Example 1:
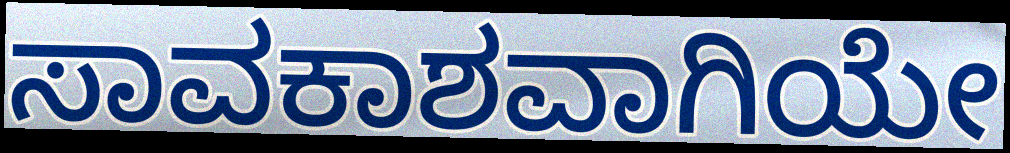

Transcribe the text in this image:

ಸಾವಕಾಶವಾಗಿಯೇ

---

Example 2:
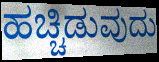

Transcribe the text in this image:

ಹಚ್ಚಿಡುವುದು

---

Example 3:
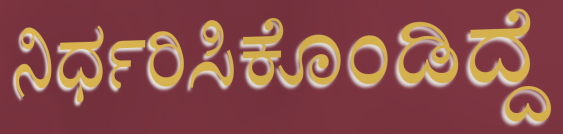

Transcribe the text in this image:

ನಿರ್ಧರಿಸಿಕೊಂಡಿದ್ದೆ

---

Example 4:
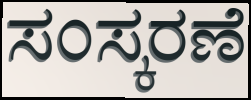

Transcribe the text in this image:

ಸಂಸ್ಕರಣೆ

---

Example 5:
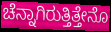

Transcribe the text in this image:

ಚೆನ್ನಾಗಿರುತ್ತಿತ್ತೇನೊ